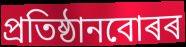
প্ৰতিষ্ঠানবোৰৰ